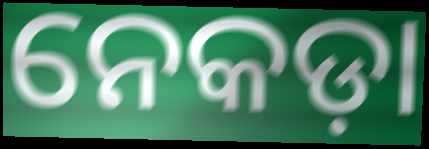
ନେକଡ଼ା